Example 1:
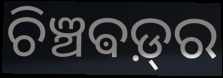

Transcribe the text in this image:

ଚିଞ୍ଚଵଡ଼୍‌ର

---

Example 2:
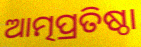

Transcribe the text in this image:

ଆତ୍ମପ୍ରତିଷ୍ଠା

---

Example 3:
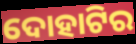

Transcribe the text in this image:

ଦୋହାଟିର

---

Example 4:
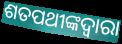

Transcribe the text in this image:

ଶତପଥୀଙ୍କଦ୍ୱାରା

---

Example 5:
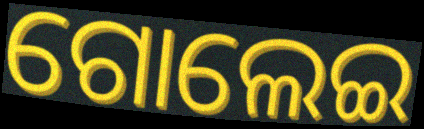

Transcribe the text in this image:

ଗୋଲେଇ